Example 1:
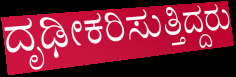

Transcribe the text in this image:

ದೃಢೀಕರಿಸುತ್ತಿದ್ದರು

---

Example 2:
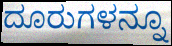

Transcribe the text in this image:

ದೂರುಗಳನ್ನೂ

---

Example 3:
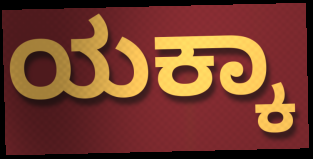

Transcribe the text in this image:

ಯಕ್ಕಾ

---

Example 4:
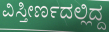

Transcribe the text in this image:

ವಿಸ್ತೀರ್ಣದಲ್ಲಿದ್ದ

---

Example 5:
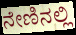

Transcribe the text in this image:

ನೇಣಿನಲ್ಲಿ